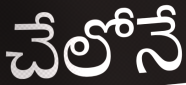
చేలోనే